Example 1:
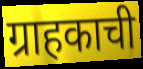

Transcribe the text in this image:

ग्राहकाची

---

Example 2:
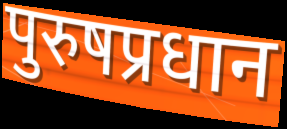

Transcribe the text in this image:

पुरुषप्रधान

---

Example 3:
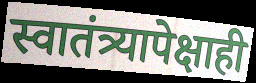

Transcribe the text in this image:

स्वातंत्र्यापेक्षाही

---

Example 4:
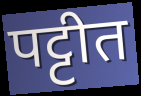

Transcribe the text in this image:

पट्टीत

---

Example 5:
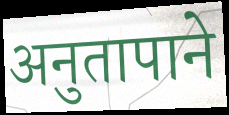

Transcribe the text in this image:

अनुतापाने